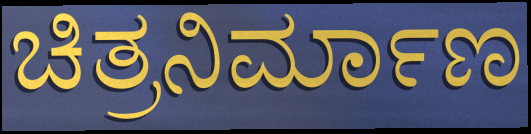
ಚಿತ್ರನಿರ್ಮಾಣ